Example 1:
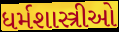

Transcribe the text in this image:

ધર્મશાસ્ત્રીઓ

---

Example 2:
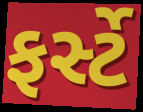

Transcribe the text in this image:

ફર્સ્ટે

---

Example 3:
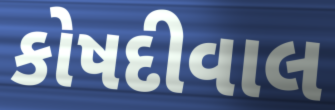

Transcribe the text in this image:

કોષદીવાલ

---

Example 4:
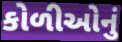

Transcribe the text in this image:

કોળીઓનું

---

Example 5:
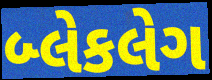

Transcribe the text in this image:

બ્લેકલેગ